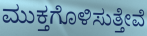
ಮುಕ್ತಗೊಳಿಸುತ್ತೇವೆ